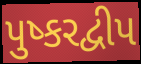
પુષ્કરદ્વીપ